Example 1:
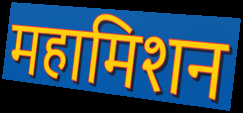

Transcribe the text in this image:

महामिशन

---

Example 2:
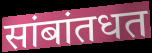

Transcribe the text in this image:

सांबांतधत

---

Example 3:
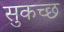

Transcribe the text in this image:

सुकच्छ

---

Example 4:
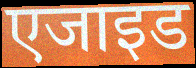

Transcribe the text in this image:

एजाइड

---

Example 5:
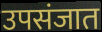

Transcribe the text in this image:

उपसंजात